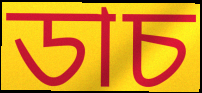
ডাচ